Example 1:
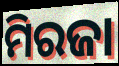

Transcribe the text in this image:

ମିରଜା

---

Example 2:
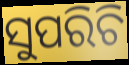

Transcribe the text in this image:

ସୁପରିଚି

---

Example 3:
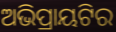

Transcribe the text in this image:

ଅଭିପ୍ରାୟଟିର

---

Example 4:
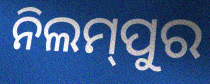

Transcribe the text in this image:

ନିଲମ୍‍ପୁର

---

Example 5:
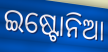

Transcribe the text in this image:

ଇଷ୍ଟୋନିଆ